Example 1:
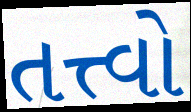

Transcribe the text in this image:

તત્ત્વો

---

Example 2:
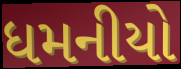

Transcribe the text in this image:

ધમનીયો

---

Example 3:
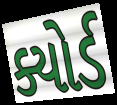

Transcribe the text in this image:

ક્યોર્ડ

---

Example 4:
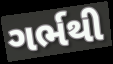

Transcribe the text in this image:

ગર્ભથી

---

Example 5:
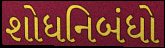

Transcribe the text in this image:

શોધનિબંધો